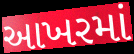
આખરમાં